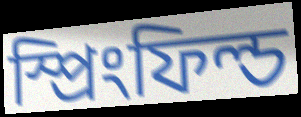
স্প্রিংফিল্ড